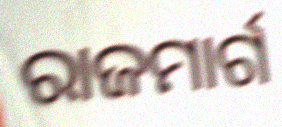
ରାଜମାର୍ଗ